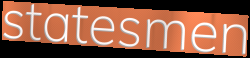
statesmen